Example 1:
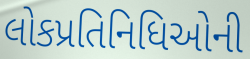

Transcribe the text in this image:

લોકપ્રતિનિધિઓની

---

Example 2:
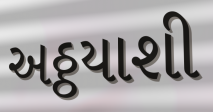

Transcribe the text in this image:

અઠ્ઠયાશી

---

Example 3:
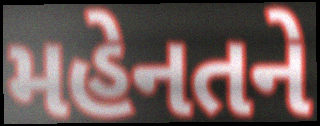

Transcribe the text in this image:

મહેનતને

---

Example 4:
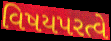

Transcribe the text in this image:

વિષયપરત્વે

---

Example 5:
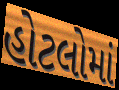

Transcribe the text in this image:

હોટલોમાં